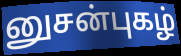
னுசன்புகழ்